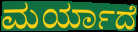
ಮರ್ಯಾದೆ